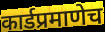
कार्डप्रमाणेच